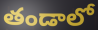
తండాలో